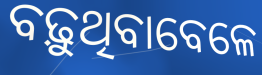
ବଢ଼ୁଥିବାବେଳେ